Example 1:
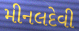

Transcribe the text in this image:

મીનલદેવી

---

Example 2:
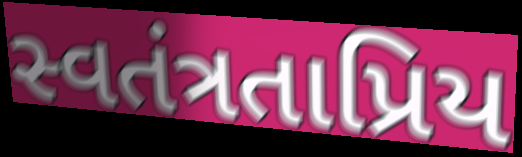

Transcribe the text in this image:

સ્વતંત્રતાપ્રિય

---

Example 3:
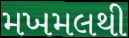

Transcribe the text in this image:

મખમલથી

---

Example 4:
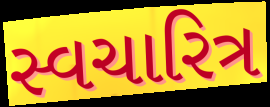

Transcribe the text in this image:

સ્વચારિત્ર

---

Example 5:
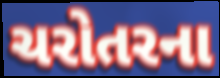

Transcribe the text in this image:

ચરોતરના